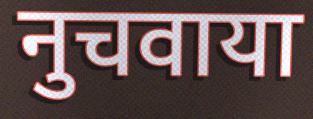
नुचवाया